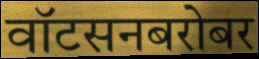
वॉटसनबरोबर